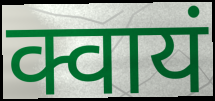
क्वायं